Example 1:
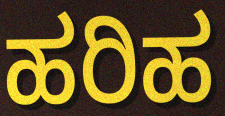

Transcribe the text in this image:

ಹರಿಹ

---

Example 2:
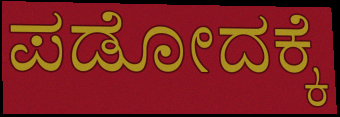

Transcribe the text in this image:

ಪಡೋದಕ್ಕೆ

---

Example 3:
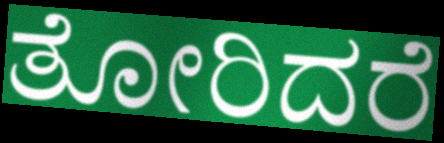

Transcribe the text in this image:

ತೋರಿದರೆ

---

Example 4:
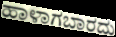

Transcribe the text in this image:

ಹಾಳಾಗಬಾರದು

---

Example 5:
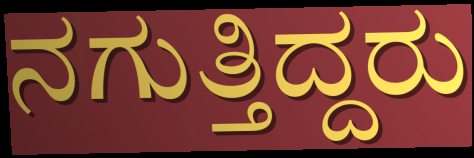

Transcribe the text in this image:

ನಗುತ್ತಿದ್ದರು